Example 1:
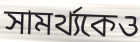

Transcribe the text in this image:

সামর্থ্যকেও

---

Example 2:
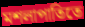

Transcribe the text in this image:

মশলাপাতিতে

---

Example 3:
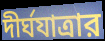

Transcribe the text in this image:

দীর্ঘযাত্রার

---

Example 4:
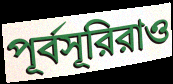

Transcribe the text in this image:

পূর্বসূরিরাও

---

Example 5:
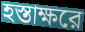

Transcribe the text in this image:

হস্তাক্ষরে